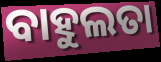
ବାହୁଲତା